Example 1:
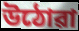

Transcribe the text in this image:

উঠোৱা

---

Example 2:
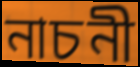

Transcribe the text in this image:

নাচনী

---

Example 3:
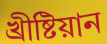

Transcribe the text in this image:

খ্ৰীষ্টিয়ান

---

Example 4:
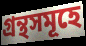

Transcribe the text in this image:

গ্ৰন্থসমূহে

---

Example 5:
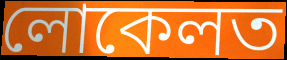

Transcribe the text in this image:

লোকেলত